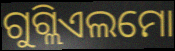
ଗୁଗ୍ଲିଏଲମୋ